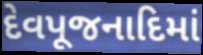
દેવપૂજનાદિમાં